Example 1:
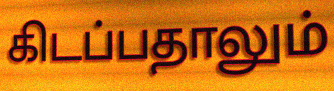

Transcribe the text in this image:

கிடப்பதாலும்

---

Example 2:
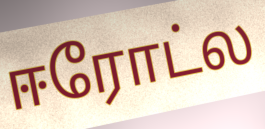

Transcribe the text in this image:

ஈரோட்ல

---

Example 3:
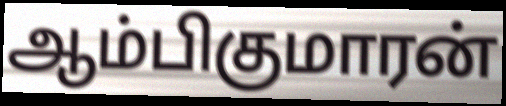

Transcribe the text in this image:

ஆம்பிகுமாரன்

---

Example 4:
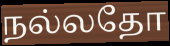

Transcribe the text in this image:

நல்லதோ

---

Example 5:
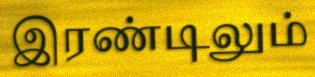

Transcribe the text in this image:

இரண்டிலும்